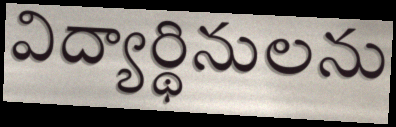
విద్యార్థినులను